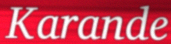
Karande